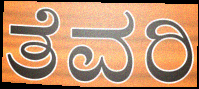
ತೆವರಿ